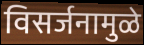
विसर्जनामुळे